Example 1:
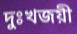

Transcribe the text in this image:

দুঃখজয়ী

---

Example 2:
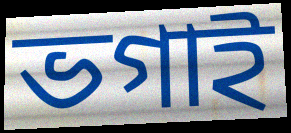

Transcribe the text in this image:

ভগাই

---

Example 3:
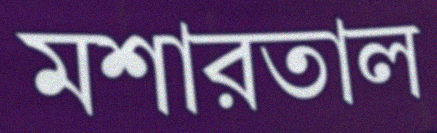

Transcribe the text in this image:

মশারতাল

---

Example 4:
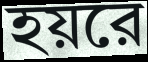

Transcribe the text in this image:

হয়রে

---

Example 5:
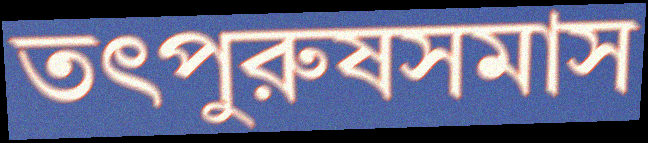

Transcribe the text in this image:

তৎপুরুষসমাস